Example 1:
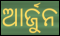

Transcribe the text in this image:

ଆର୍ଜୁନ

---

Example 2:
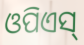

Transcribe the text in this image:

ଓପିଏସ୍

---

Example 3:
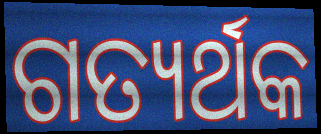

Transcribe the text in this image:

ଗତ୍ୟର୍ଥକ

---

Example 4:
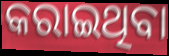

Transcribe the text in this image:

କରାଇଥିବା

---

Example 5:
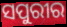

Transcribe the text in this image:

ସପୁରୀର